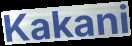
Kakani